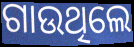
ଗାଉଥିଲେ